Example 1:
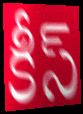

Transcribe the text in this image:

కీస్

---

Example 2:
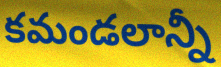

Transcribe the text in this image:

కమండలాన్నీ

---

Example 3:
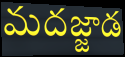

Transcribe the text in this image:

మదజ్జాడ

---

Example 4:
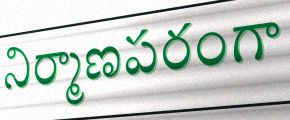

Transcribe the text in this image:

నిర్మాణపరంగా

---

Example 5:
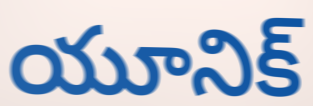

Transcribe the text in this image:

యూనిక్